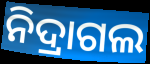
ନିଦ୍ରାଗଲ